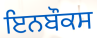
ਇਨਬੌਕਸ